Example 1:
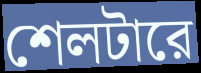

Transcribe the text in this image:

শেলটারে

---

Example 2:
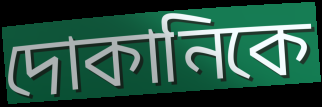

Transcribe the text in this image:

দোকানিকে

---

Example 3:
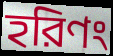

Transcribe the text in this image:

হরিণং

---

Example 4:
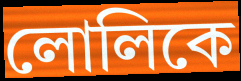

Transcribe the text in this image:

লোলিকে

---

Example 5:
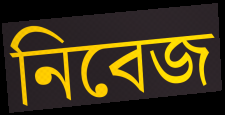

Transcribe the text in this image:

নিবেজ